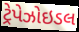
ટ્રેપેઝોઇડલ